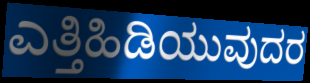
ಎತ್ತಿಹಿಡಿಯುವುದರ